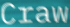
Craw